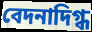
বেদনাদিগ্ধ